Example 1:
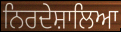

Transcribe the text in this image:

ਨਿਰਦੇਸ਼ਾਲਿਆ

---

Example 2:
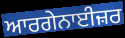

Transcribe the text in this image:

ਆਰਗੇਨਾਈਜ਼ਰ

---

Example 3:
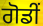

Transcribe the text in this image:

ਗੋਡੀਂ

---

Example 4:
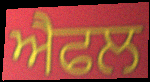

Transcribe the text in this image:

ਐਫਲ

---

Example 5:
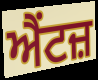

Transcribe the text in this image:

ਐਂਟਜ਼